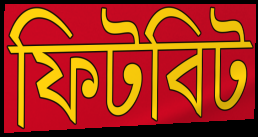
ফিটবিট